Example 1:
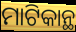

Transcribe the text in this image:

ମାଟିକାନ୍ଥ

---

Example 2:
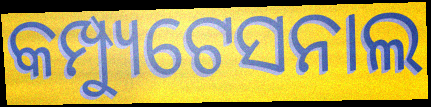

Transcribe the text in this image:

କମ୍ପ୍ୟୁଟେସନାଲ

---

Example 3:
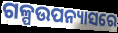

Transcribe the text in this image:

ଗଳ୍ପଉପନ୍ୟାସରେ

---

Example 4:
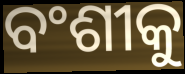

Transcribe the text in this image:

ବଂଶୀକୁ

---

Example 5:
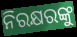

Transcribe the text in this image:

ନିରକ୍ଷରଙ୍କୁ